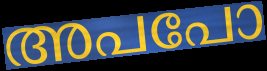
അപപോ